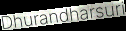
Dhurandharsuri